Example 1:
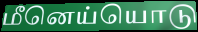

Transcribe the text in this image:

மீனெய்யொடு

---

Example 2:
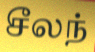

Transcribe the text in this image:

சீலந்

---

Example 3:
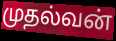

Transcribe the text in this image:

முதல்வன்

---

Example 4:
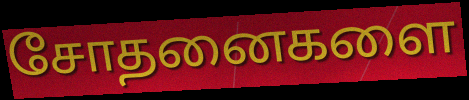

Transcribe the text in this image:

சோதனைகளை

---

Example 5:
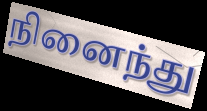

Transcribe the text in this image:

நினைந்து